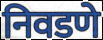
निवडणे